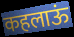
कहलाऊं